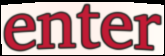
enter